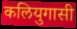
कलियुगासी